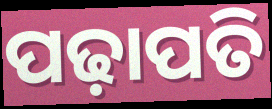
ପଢ଼ାପତି